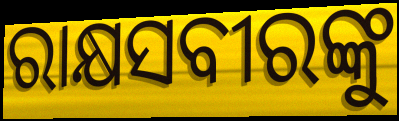
ରାକ୍ଷସବୀରଙ୍କୁ